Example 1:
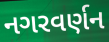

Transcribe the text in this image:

નગરવર્ણન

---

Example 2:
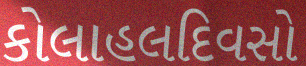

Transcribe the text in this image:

કોલાહલદિવસો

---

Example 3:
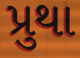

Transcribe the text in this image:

પ્રુથા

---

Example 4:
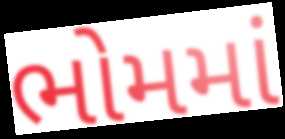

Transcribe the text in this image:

ભોમમાં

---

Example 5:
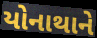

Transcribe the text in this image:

યોનાથાને